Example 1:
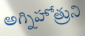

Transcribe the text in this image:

అగ్నిహోత్రుని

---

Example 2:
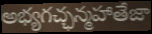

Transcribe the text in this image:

అభ్యగచ్ఛన్మహాతేజా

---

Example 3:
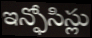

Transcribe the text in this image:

ఇన్ఫోసిస్లు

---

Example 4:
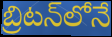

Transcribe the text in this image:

బ్రిటన్‌లోనే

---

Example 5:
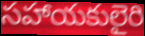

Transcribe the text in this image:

సహాయకులైరి